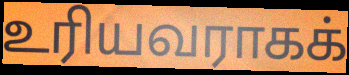
உரியவராகக்